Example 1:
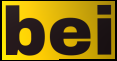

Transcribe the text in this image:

bei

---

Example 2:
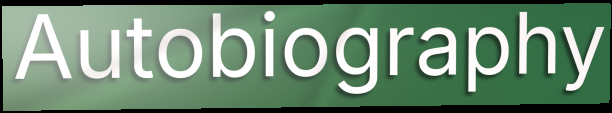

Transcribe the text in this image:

Autobiography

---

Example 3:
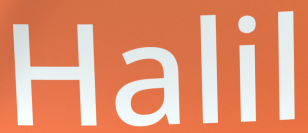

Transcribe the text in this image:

Halil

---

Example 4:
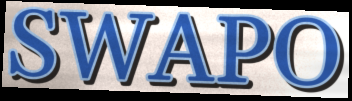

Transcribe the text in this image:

SWAPO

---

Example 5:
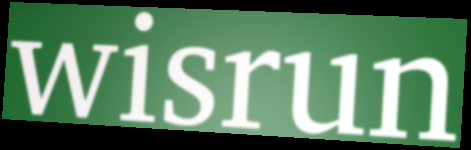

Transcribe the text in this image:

wisrun